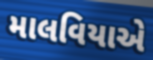
માલવિયાએ